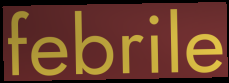
febrile